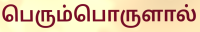
பெரும்பொருளால்